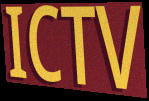
ICTV